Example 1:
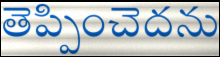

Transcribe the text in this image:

తెప్పించెదను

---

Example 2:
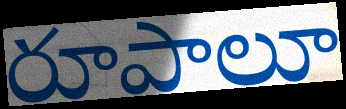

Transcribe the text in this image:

రూపాలూ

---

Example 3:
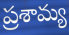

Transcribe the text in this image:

ప్రశామ్య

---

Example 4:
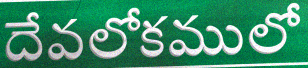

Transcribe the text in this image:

దేవలోకములో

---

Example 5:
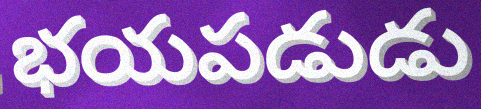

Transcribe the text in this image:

భయపడుడు